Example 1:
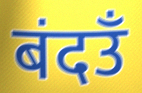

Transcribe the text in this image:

बंदउँ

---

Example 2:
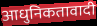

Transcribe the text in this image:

आधुनिकतावादी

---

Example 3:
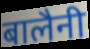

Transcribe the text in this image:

बालैनी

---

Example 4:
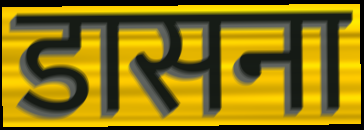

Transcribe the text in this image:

डासना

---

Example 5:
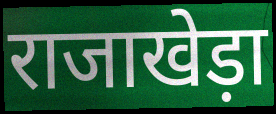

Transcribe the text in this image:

राजाखेड़ा